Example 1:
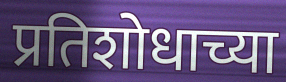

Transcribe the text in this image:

प्रतिशोधाच्या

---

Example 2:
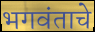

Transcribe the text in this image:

भगवंताचे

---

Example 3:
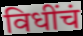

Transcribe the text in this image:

विधींचं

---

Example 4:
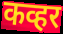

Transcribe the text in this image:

कव्हर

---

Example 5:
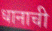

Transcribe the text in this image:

धानाची